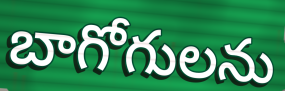
బాగోగులను